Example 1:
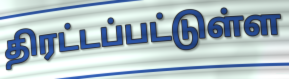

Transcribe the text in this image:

திரட்டப்பட்டுள்ள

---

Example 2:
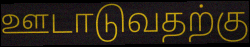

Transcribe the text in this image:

ஊடாடுவதற்கு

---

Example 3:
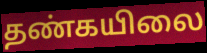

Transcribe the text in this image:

தண்கயிலை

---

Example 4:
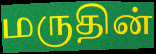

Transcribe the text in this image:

மருதின்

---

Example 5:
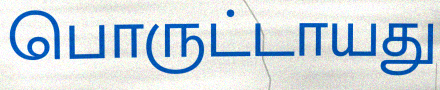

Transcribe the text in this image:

பொருட்டாயது